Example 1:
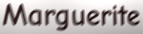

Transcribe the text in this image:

Marguerite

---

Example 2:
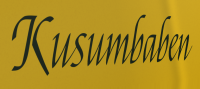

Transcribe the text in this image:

Kusumbaben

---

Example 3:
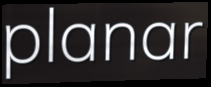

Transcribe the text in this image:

planar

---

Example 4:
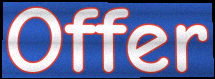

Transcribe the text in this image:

Offer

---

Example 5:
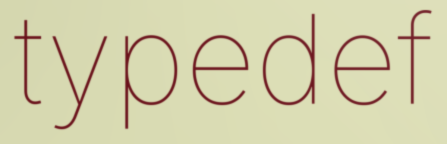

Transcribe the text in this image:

typedef